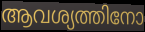
ആവശ്യത്തിനോ